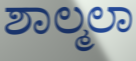
ಶಾಲ್ಮಲಾ